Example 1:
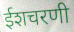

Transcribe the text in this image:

ईशचरणी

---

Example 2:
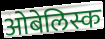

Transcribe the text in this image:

ओबेलिस्क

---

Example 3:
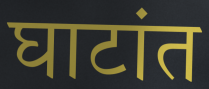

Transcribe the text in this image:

घाटांत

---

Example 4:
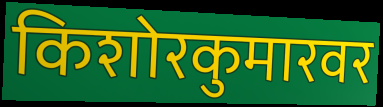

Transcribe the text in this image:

किशोरकुमारवर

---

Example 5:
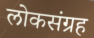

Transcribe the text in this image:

लोकसंग्रह